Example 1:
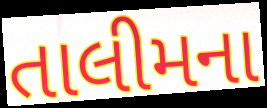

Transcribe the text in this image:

તાલીમના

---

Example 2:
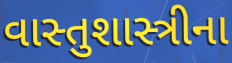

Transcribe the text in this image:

વાસ્તુશાસ્ત્રીના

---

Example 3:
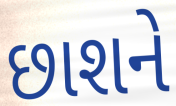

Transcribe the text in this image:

છાશને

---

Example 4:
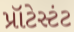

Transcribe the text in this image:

પ્રૉટેસ્ટંટ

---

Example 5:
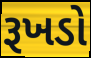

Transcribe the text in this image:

રૂખડો